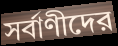
সর্বাণীদের